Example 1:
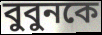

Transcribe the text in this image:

বুবুনকে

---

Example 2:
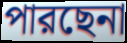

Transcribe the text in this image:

পারছেনা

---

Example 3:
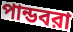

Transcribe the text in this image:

পান্ডবরা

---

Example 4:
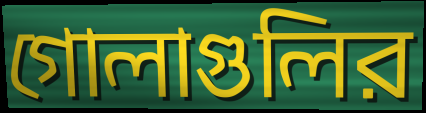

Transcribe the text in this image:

গোলাগুলির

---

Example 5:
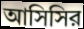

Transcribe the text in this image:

আসিসির